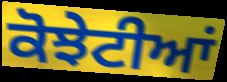
ਕੋਝੇਟੀਆਂ